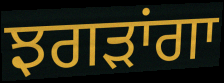
ਝਗੜਾਂਗਾ